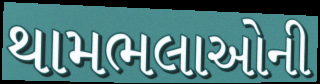
થામભલાઓની